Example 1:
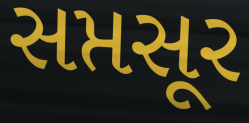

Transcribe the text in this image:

સપ્તસૂર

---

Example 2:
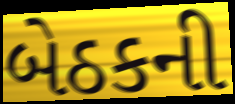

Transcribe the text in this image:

બેઠકની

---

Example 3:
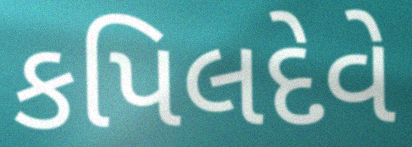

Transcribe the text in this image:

કપિલદેવે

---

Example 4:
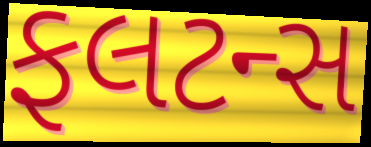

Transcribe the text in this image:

ફલટન્સ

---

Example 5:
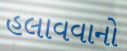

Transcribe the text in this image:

હલાવવાનો